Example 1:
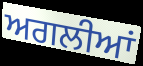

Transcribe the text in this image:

ਅਗਲੀਆਂ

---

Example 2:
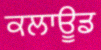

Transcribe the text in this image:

ਕਲਾਊਡ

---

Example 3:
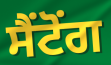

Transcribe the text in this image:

ਸੈਂਟੋਂਗ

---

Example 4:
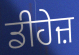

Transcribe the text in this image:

ਡੀਹੇਜ਼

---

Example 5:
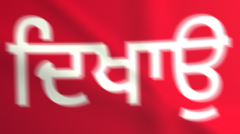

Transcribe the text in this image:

ਦਿਖਾਉ